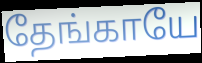
தேங்காயே